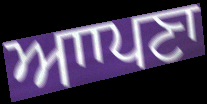
ਆਾਪਣਾ